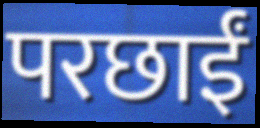
परछाईं